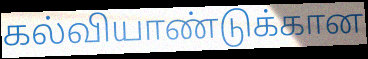
கல்வியாண்டுக்கான